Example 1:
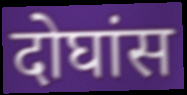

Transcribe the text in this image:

दोघांस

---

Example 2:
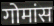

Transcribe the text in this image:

गोमांस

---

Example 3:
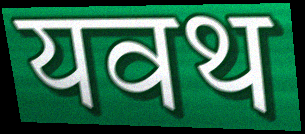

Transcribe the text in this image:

यवथ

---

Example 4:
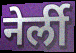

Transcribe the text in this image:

नेर्ली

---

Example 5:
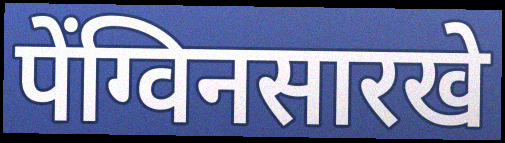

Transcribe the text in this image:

पेंग्विनसारखे